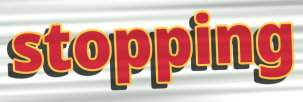
stopping